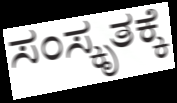
ಸಂಸ್ಕೃತಕ್ಕೆ